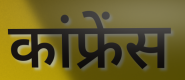
कांफ्रेंस